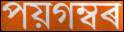
পয়গম্বৰ